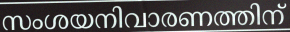
സംശയനിവാരണത്തിന്